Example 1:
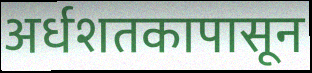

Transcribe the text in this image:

अर्धशतकापासून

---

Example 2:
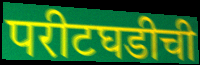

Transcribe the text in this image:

परीटघडीची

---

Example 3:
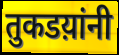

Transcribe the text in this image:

तुकडय़ांनी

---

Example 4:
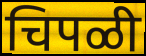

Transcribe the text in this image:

चिपळी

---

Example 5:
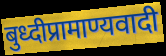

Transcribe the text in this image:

बुध्दीप्रामाण्यवादी